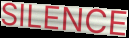
SILENCE